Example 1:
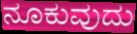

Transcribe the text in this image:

ನೂಕುವುದು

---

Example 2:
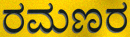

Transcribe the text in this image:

ರಮಣರ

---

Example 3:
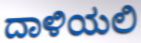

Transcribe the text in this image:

ದಾಳಿಯಲಿ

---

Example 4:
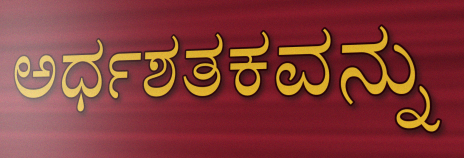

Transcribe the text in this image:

ಅರ್ಧಶತಕವನ್ನು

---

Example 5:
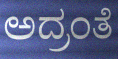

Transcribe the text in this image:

ಅದ್ರಂತೆ